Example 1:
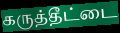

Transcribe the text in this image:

கருத்தீட்டை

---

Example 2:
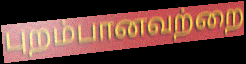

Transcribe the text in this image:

புறம்பானவற்றை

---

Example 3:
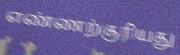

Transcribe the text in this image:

எண்ணற்குரியது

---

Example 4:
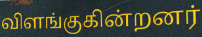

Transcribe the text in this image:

விளங்குகின்றனர்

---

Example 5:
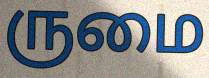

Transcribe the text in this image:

ருமை